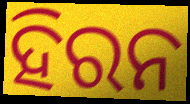
ହିରନ